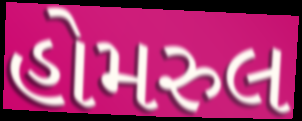
હોમરુલ